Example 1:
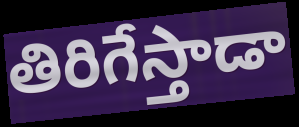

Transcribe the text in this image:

తిరిగేస్తాడా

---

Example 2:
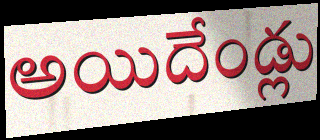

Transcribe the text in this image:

అయిదేండ్లు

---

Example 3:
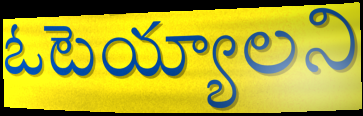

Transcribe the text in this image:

ఓటెయ్యాలని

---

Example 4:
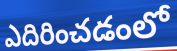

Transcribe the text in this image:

ఎదిరించడంలో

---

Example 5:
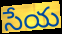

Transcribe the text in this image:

సేయ